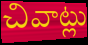
చివాట్లు